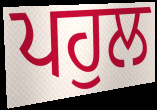
ਪਹੁਲ